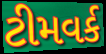
ટીમવર્ક